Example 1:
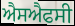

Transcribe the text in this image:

ਐਸਐਫਸੀ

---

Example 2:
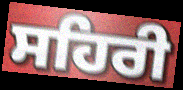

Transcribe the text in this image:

ਸਹਿਰੀ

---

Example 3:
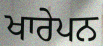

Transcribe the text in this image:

ਖਾਰੇਪਨ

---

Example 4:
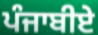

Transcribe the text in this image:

ਪੰਜਾਬੀਏ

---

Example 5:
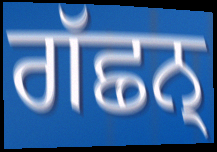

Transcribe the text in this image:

ਗੱਛਨ੍